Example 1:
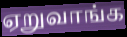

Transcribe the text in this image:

ஏறுவாங்க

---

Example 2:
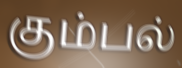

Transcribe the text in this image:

கும்பல்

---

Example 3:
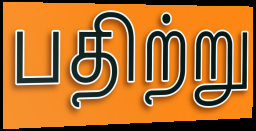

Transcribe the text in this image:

பதிற்று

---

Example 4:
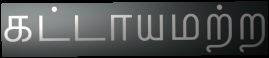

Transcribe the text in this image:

கட்டாயமற்ற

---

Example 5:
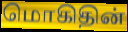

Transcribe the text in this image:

மொகிதின்